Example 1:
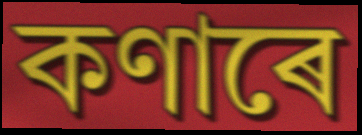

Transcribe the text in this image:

কণাৰে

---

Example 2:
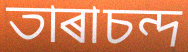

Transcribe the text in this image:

তাৰাচন্দ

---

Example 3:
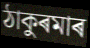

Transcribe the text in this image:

ঠাকুৰমাৰ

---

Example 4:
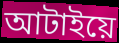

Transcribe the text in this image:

আটাইয়ে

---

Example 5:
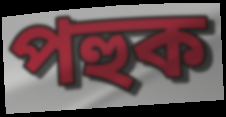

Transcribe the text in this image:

পহুক